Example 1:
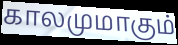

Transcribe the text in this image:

காலமுமாகும்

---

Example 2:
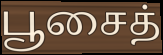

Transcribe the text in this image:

பூசைத்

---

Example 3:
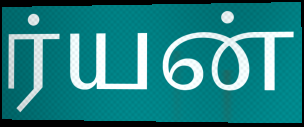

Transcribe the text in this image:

ர்யன்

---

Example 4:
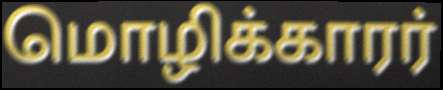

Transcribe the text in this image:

மொழிக்காரர்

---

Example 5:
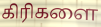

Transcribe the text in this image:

கிரிகளை